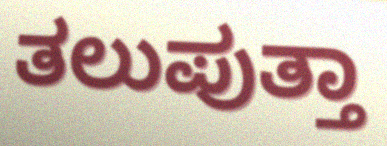
ತಲುಪುತ್ತಾ